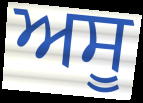
ਅਸੂ